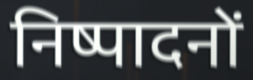
निष्पादनों